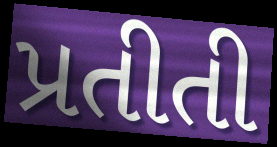
પ્રતીતી